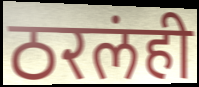
ठरलंही